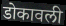
डोकावली